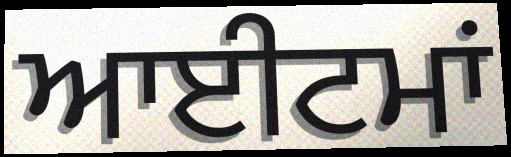
ਆਈਟਮਾਂ